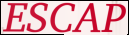
ESCAP